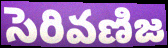
సెరివణిజ